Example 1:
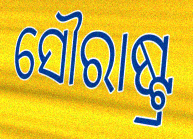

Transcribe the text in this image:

ସୌରାଷ୍ଟ୍ର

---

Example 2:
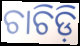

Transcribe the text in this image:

ଚାଚିଡ଼ି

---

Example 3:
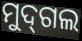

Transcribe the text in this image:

ମୁଦ୍‌ଗଲ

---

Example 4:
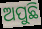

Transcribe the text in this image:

ଅପୁଛି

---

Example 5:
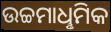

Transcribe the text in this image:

ଉଚ୍ଚମାଧୢମିକ